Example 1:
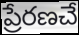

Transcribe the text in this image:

ప్రేరణచే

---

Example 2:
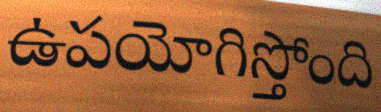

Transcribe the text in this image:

ఉపయోగిస్తోంది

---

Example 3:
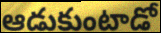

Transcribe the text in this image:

ఆడుకుంటాడో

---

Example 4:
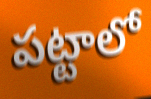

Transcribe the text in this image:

పట్టాలో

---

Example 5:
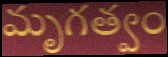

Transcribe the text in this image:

మృగత్వం